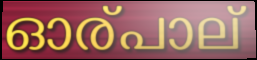
ഓര്പാല്